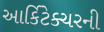
આર્કિટેક્ચરની